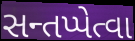
સન્તપ્પેત્વા